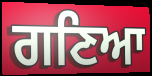
ਗਣਿਆ